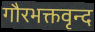
गौरभक्तवृन्द